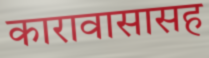
कारावासासह